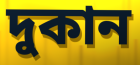
দুকান